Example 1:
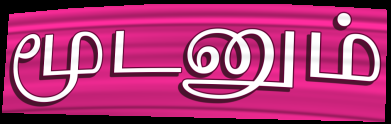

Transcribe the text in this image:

மூடனும்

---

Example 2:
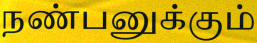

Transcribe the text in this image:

நண்பனுக்கும்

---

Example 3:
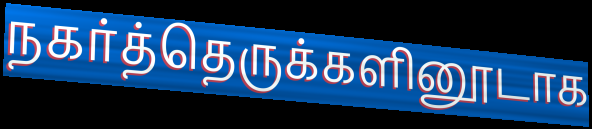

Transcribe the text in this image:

நகர்த்தெருக்களினூடாக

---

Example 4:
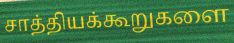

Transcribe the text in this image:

சாத்தியக்கூறுகளை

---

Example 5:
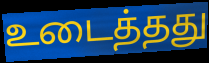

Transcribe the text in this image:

உடைத்தது